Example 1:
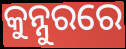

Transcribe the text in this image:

କୁନ୍ନୁରରେ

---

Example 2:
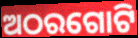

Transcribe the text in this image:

ଅଠରଗୋଟି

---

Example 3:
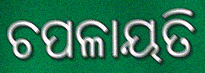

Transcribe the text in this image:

ଚପଳାୟତି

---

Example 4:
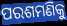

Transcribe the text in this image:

ପରଶମଣିକୁ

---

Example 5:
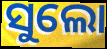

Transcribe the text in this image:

ସୁଲୋ